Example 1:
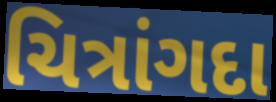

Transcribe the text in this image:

ચિત્રાંગદા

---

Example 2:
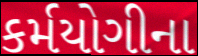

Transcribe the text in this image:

કર્મયોગીના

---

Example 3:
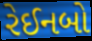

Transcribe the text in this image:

રેઈનબો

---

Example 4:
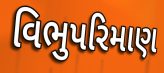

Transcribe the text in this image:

વિભુપરિમાણ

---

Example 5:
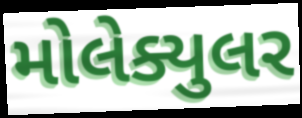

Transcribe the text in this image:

મોલેક્યુલર